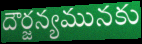
దౌర్జన్యమునకు